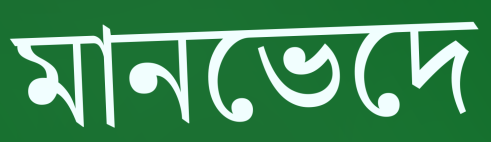
মানভেদে